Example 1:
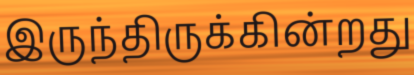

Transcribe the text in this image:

இருந்திருக்கின்றது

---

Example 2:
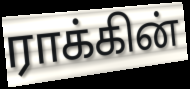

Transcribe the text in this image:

ராக்கின்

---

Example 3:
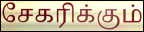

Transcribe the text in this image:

சேகரிக்கும்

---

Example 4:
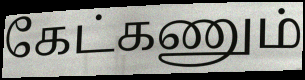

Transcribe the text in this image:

கேட்கணும்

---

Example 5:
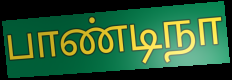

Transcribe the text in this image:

பாண்டிநா